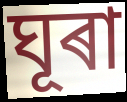
ঘূৰা